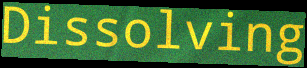
Dissolving